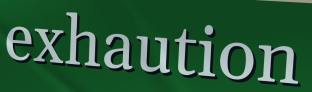
exhaution